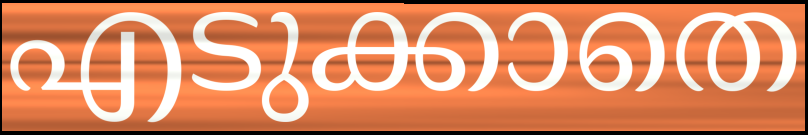
എടുക്കാതെ